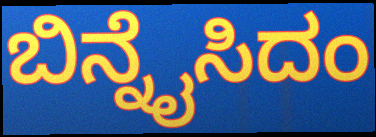
ಬಿನ್ನೈಸಿದಂ